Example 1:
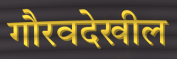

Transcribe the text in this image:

गौरवदेखील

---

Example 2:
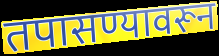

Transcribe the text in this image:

तपासण्यावरून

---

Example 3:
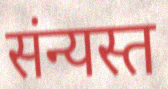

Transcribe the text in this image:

संन्यस्त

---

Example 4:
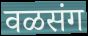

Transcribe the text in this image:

वळसंग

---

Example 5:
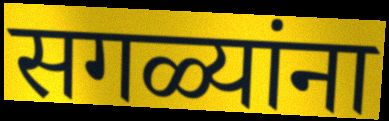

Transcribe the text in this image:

सगळ्यांना